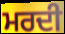
ਮਰਦੀ